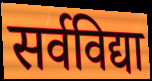
सर्वविद्या